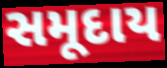
સમૂદાય